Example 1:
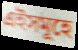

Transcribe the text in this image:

এইসমূহে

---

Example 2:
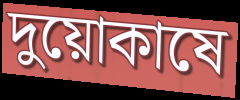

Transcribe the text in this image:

দুয়োকাষে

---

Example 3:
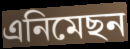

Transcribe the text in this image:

এনিমেছন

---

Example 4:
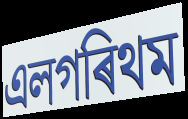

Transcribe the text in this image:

এলগৰিথম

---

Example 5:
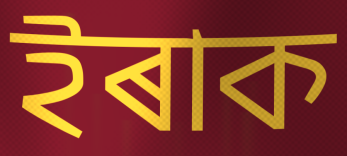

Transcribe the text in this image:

ইৰাক